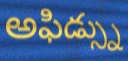
అఫిడ్స్ను